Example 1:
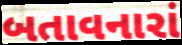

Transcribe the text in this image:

બતાવનારાં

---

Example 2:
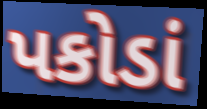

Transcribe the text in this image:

પકોડાં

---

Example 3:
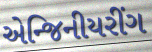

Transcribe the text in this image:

એન્જિનીયરીંગ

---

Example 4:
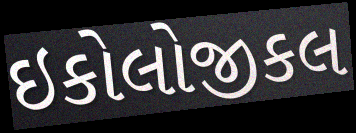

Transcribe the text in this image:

ઇકોલોજીકલ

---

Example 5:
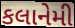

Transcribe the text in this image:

કલાનેમી